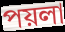
পয়লা